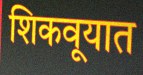
शिकवूयात